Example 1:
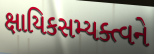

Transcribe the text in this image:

ક્ષાયિકસમ્યક્ત્વને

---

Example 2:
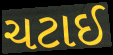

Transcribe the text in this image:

ચટાઈ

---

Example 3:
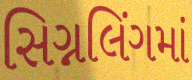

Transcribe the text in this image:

સિગ્નલિંગમાં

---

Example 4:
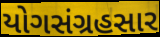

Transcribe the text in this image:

યોગસંગ્રહસાર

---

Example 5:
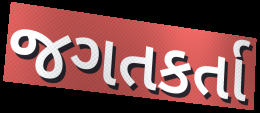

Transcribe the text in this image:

જગતકર્તા